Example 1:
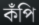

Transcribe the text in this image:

কঁপি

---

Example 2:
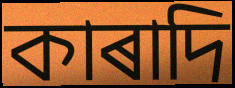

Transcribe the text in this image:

কাৰাদি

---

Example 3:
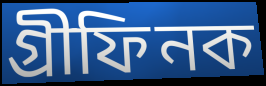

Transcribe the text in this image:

গ্ৰীফিনক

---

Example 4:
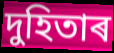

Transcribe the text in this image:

দুহিতাৰ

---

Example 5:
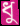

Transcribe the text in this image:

ধু